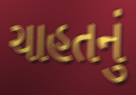
ચાહતનું